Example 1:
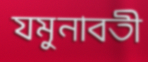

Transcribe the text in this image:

যমুনাবতী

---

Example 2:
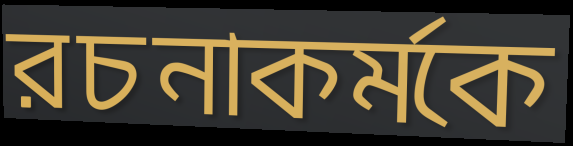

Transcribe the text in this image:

রচনাকর্মকে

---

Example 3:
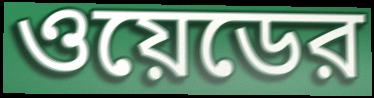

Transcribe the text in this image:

ওয়েডের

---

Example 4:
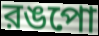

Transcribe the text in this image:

রঙপো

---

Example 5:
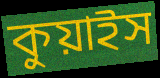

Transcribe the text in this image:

কুয়াইস